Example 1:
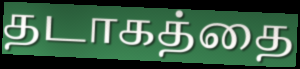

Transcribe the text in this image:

தடாகத்தை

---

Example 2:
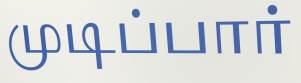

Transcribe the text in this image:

முடிப்பார்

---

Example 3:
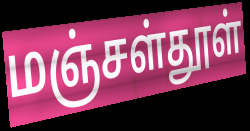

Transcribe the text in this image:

மஞ்சள்தூள்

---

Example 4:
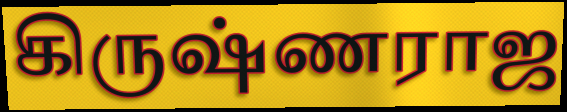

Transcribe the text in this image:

கிருஷ்ணராஜ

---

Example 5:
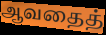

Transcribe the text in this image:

ஆவதைத்